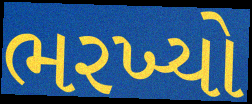
ભરખ્યો